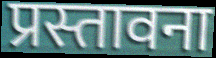
प्रस्‍तावना